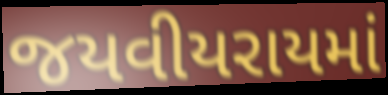
જયવીયરાયમાં